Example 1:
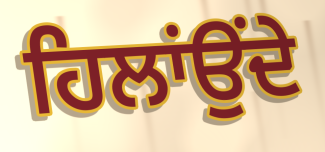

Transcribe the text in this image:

ਹਿਲਾਂਉਂਦੇ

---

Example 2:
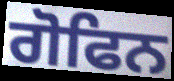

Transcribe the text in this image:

ਗੋਫਿਨ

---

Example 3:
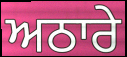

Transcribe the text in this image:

ਅਠਾਰੇ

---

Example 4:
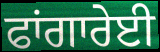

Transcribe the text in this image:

ਫਾਂਗਾਰੇਈ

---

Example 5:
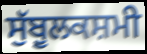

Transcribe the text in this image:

ਸੁੱਬੂਲਕਸ਼ਮੀ